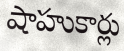
షాహుకార్లు